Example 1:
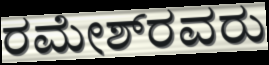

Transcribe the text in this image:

ರಮೇಶ್‌ರವರು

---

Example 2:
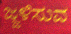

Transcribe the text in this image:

ಜ್ಜಳಿಸುವ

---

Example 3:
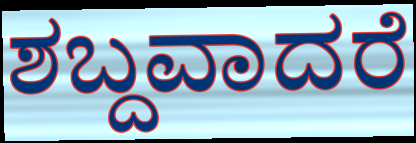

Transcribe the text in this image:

ಶಬ್ದವಾದರೆ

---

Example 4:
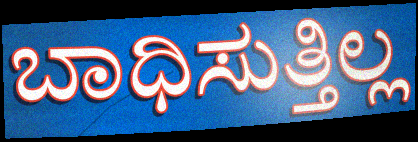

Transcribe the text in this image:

ಬಾಧಿಸುತ್ತಿಲ್ಲ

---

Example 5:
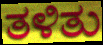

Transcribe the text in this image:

ತಳಿತು